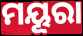
ମୟୂରା